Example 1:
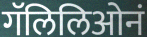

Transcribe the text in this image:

गॅलिलिओनं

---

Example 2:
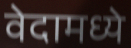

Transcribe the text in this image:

वेदामध्ये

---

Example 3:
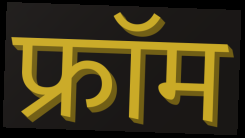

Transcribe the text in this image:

फ्रॉम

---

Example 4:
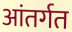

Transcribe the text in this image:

आंतर्गत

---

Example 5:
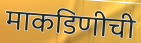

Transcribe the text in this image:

माकडिणीची